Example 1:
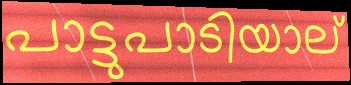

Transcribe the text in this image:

പാട്ടുപാടിയാല്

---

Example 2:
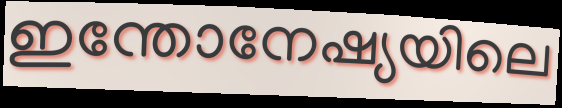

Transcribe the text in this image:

ഇന്തോനേഷ്യയിലെ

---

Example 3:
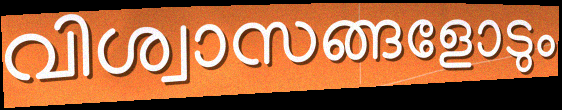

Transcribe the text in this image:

വിശ്വാസങ്ങളോടും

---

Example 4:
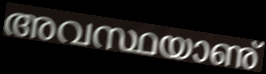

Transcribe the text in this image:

അവസ്ഥയാണു്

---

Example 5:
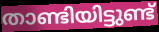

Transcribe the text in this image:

താണ്ടിയിട്ടുണ്ട്